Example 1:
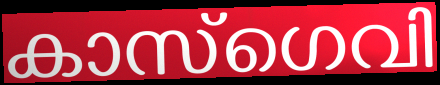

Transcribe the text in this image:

കാസ്ഗെവി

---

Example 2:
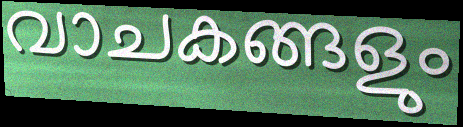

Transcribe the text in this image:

വാചകങ്ങളും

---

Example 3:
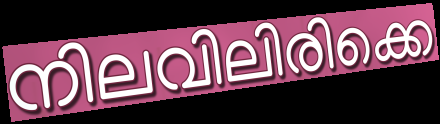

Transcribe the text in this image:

നിലവിലിരിക്കെ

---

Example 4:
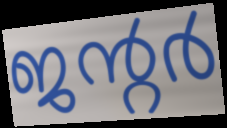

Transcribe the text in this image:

ജന്റർ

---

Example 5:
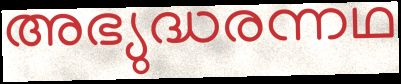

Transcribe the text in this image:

അഭ്യുദ്ധരന്നഥ